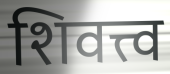
शिवत्त्व